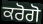
ਕਰੋਗੋ